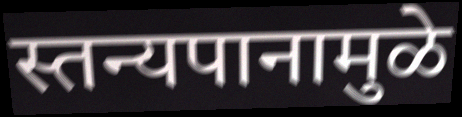
स्तन्यपानामुळे